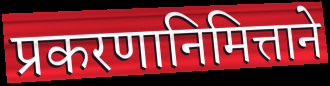
प्रकरणानिमित्ताने